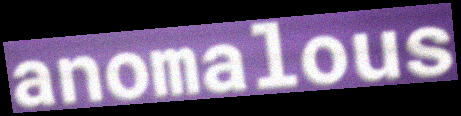
anomalous